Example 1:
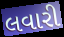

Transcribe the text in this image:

લવારી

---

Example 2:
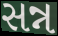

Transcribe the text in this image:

સન્ન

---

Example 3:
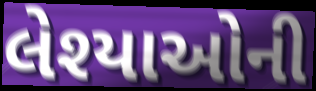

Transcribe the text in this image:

લેશ્યાઓની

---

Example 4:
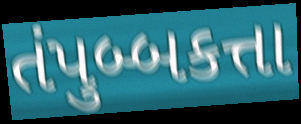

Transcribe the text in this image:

તંપુબ્બકત્તા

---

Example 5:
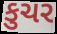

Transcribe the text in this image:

કુચર